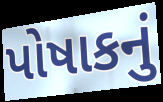
પોષાકનું